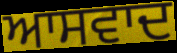
ਆਸਵਾਦ